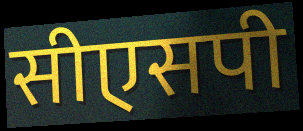
सीएसपी